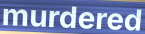
murdered